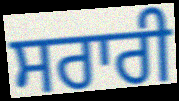
ਸਰਾਰੀ